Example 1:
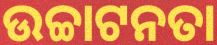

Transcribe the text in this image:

ଉଚ୍ଚାଟନତା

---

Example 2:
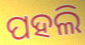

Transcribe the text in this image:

ପହଲି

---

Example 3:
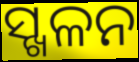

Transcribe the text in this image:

ସ୍ଖଳନ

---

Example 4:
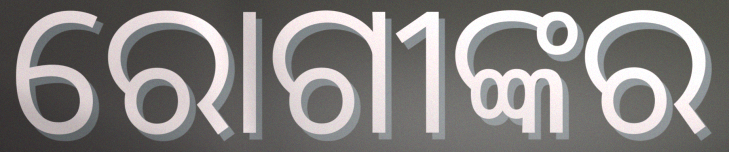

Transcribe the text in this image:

ରୋଗୀଙ୍କର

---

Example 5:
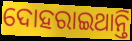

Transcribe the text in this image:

ଦୋହରାଇଥାନ୍ତି